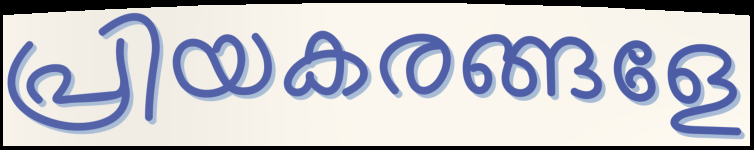
പ്രിയകരങ്ങളേ